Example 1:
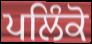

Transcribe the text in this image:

ਪਲਿੰਕੋ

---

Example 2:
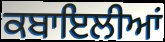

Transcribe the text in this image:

ਕਬਾਇਲੀਆਂ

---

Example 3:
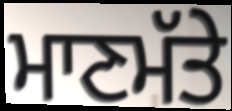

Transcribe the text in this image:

ਮਾਣਮੱਤੇ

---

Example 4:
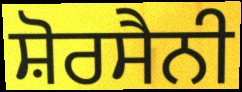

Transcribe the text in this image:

ਸ਼ੋਰਸੈਨੀ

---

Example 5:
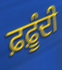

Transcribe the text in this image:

ਫ਼ਫ਼ੂੰਦੀ